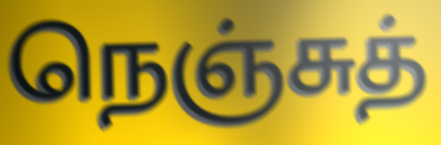
நெஞ்சுத்